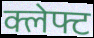
क्लेफ्ट